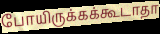
போயிருக்கக்கூடாதா